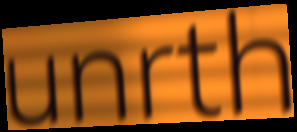
unrth